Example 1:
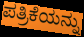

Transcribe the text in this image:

ಪತ್ರಿಕೆಯನ್ನು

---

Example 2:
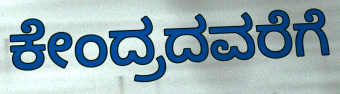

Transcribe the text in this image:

ಕೇಂದ್ರದವರೆಗೆ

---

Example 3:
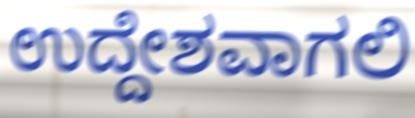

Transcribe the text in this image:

ಉದ್ದೇಶವಾಗಲಿ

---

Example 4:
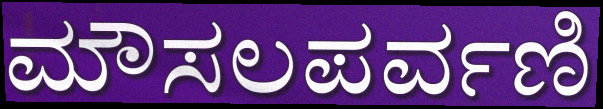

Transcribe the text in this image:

ಮೌಸಲಪರ್ವಣಿ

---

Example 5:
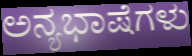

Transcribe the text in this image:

ಅನ್ಯಭಾಷೆಗಳು